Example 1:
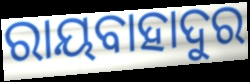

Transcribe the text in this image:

ରାୟବାହାଦୁର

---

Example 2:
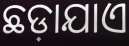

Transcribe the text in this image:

ଛଡ଼ାଯାଏ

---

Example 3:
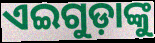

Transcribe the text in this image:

ଏଇଗୁଡ଼ାଙ୍କୁ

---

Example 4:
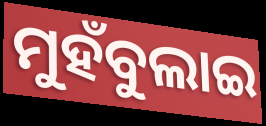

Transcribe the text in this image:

ମୁହଁବୁଲାଇ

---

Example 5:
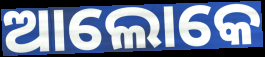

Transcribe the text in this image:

ଆଲୋକେ